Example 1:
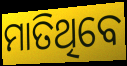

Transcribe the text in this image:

ମାତିଥିବେ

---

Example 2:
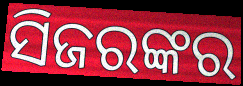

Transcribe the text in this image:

ସିଜରଙ୍କର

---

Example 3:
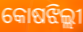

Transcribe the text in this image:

କୋଷଝିଲ୍ଲୀ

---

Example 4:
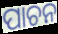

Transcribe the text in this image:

ପାଚନ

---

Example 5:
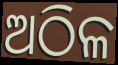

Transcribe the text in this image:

ଅଠିଳ